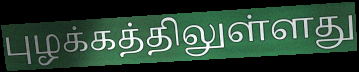
புழக்கத்திலுள்ளது